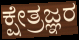
ಕ್ಷೇತ್ರಜ್ಞರ